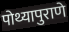
पोथ्यापुराणे